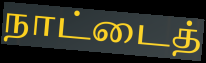
நாட்டைத்